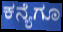
ಕನ್ಯೆಗೂ